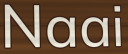
Naai